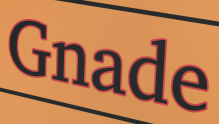
Gnade